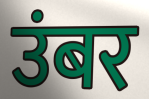
उंबर